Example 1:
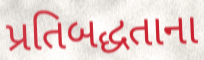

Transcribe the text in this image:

પ્રતિબદ્ધતાના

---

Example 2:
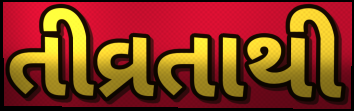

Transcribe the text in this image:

તીવ્રતાથી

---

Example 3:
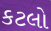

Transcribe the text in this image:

કટલો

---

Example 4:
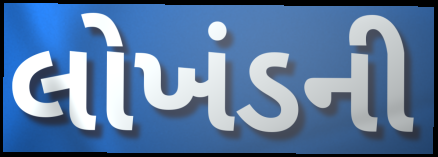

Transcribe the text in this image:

લોખંડની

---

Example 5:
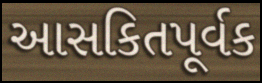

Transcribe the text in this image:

આસકિતપૂર્વક